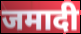
जमादी